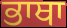
ਭਾਥਾ